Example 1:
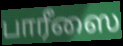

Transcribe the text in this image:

பாரீஸை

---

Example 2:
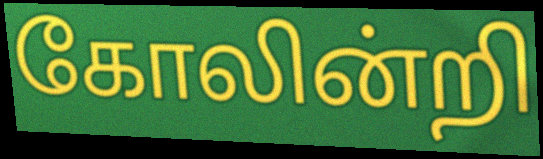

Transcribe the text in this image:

கோலின்றி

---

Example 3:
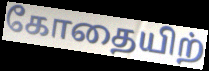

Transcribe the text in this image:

கோதையிற்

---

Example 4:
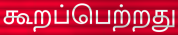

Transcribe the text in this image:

கூறப்பெற்றது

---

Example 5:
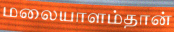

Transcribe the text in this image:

மலையாளம்தான்